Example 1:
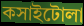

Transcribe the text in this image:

কসাইটোলা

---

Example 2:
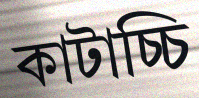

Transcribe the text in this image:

কাটাচ্চি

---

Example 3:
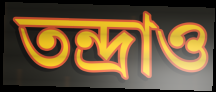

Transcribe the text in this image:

তন্দ্রাও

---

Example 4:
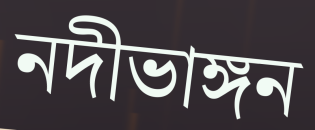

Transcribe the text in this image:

নদীভাঙ্গন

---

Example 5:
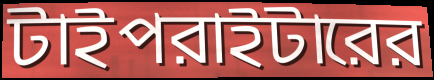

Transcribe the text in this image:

টাইপরাইটারের